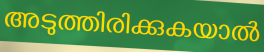
അടുത്തിരിക്കുകയാൽ